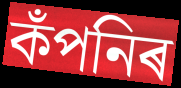
কঁপনিৰ